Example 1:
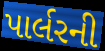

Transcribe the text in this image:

પાર્લરની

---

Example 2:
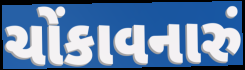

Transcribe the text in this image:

ચોંકાવનારું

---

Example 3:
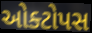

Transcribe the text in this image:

ઓક્ટોપસ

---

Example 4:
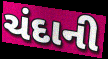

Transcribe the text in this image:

ચંદાની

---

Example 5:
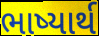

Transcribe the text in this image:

ભાષ્યાર્થ